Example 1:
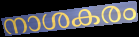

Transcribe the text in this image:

നാശകരം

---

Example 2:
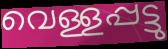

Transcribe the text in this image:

വെള്ളപ്പട്ടു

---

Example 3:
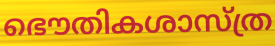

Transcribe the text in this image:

ഭൌതികശാസ്ത്ര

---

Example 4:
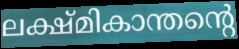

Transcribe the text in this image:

ലക്ഷ്മികാന്തന്റെ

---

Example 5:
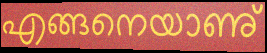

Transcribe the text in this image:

എങ്ങനെയാണു്